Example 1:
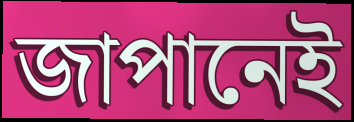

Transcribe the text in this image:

জাপানেই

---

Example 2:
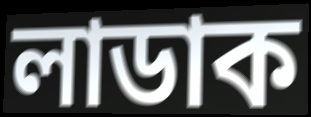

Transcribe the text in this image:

লাডাক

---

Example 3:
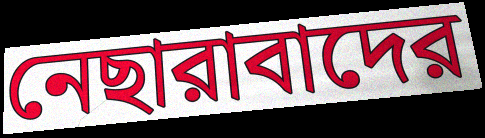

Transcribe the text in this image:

নেছারাবাদের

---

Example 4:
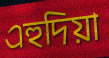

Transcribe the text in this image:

এহুদিয়া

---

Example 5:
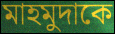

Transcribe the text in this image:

মাহমুদাকে